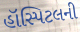
હૉસ્પિટલની